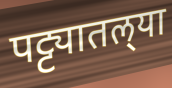
पट्ट्यातल्या